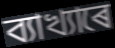
ব্যাখ্যাৰে